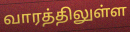
வாரத்திலுள்ள